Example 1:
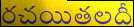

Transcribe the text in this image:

రచయితలదీ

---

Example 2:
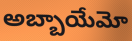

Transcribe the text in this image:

అబ్బాయేమో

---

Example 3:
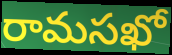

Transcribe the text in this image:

రామసఖో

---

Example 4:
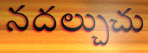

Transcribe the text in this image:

నదల్చుచు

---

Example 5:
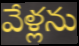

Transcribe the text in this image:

వేళ్లను